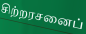
சிற்றரசனைப்